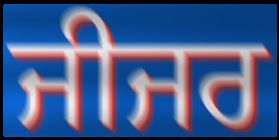
ਜੀਜਰ